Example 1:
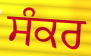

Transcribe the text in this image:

ਸੰਕਰ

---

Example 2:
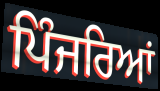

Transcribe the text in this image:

ਪਿੰਜਰਿਆਂ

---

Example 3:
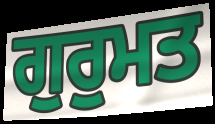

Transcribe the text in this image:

ਗੁਰੁਮਤ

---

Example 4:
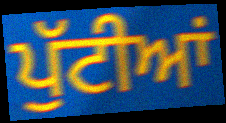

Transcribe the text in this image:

ਪੁੱਟੀਆਂ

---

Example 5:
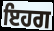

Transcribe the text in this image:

ਇਹਗ